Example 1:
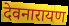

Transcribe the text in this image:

देवनारायण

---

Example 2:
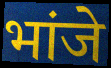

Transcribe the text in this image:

भांजे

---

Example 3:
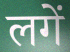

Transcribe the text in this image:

लगें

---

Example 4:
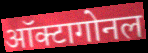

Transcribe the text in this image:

ऑक्टागोनल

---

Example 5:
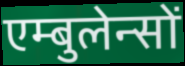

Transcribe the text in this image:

एम्बुलेन्सों